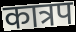
कात्रप